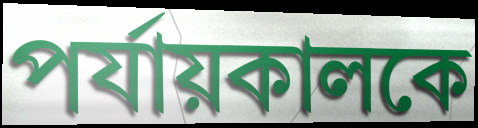
পর্যায়কালকে